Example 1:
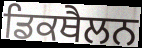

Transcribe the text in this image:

ਡਿਕਥੈਲਨ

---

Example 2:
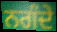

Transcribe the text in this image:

ਨਗੰਦੇ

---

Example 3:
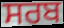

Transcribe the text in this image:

ਸਰਬ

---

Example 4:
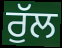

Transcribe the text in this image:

ਰੁੱਲ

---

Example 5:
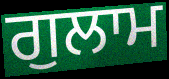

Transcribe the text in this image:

ਗੁਲਾਮ